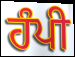
ਹੰਪੀ